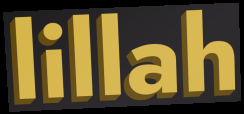
lillah